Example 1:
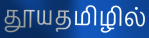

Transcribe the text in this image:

தூயதமிழில்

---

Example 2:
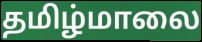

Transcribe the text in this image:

தமிழ்மாலை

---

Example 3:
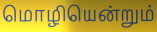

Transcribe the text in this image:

மொழியென்றும்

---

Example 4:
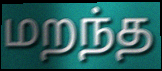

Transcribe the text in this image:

மறந்த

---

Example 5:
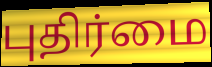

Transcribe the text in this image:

புதிர்மை